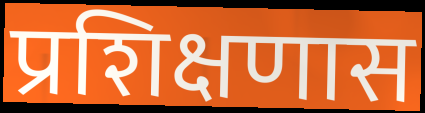
प्रशिक्षणास